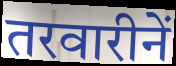
तरवारीनें